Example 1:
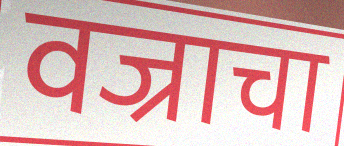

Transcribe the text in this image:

वज्राचा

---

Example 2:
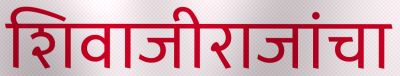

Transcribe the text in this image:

शिवाजीराजांचा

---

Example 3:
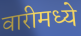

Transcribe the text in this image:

वारीमध्ये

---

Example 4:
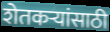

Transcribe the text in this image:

शेतकर्‍यांसाठी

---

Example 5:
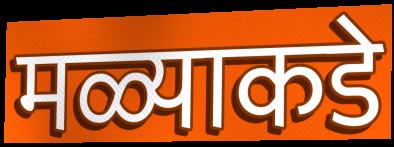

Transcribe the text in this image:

मळ्याकडे